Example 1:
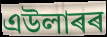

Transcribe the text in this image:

এউলাৰৰ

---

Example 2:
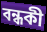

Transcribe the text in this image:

বন্ধকী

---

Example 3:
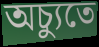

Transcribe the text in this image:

অচ্যুতে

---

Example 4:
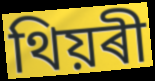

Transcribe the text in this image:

থিয়ৰী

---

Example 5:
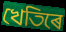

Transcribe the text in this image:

খেতিৰে